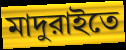
মাদুরাইতে